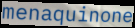
menaquinone